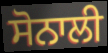
ਸੋਨਾਲੀ